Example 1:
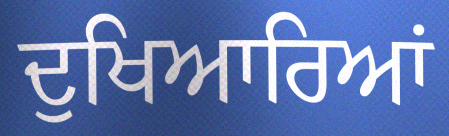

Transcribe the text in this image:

ਦੁਖਿਆਰਿਆਂ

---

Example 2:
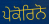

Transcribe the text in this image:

ਪੇਕੋਰਿਨੋ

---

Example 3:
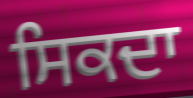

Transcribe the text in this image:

ਸਿਕਦਾ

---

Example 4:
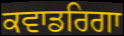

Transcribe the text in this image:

ਕਵਾਡਰਿਗਾ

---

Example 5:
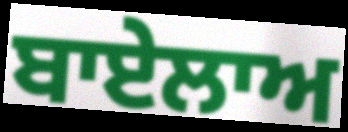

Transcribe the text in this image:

ਬਾਏਲਾਅ